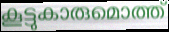
കൂട്ടുകാരുമൊത്ത്